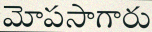
మోపసాగారు